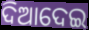
ଦିଆଦେଇ